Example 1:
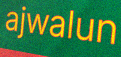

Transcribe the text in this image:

ajwalun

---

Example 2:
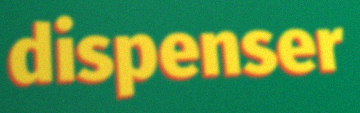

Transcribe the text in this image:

dispenser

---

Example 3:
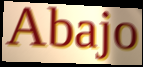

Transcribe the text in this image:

Abajo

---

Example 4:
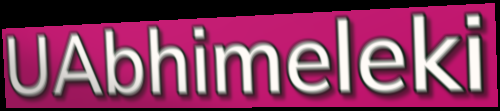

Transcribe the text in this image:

UAbhimeleki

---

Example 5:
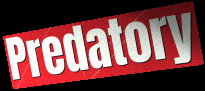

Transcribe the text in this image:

Predatory